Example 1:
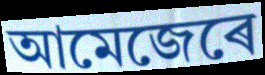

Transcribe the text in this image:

আমেজেৰে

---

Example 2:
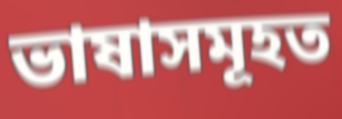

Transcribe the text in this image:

ভাষাসমূহত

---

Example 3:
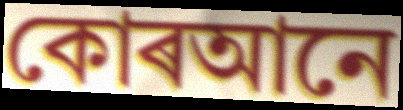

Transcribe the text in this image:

কোৰআনে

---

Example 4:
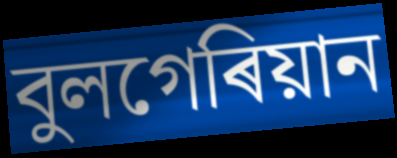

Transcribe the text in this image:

বুলগেৰিয়ান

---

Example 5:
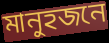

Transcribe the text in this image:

মানুহজনে